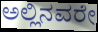
ಅಲ್ಲಿನವರೇ